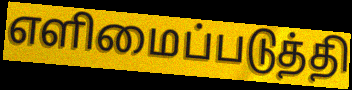
எளிமைப்படுத்தி